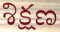
శిక్షణ